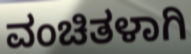
ವಂಚಿತಳಾಗಿ